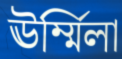
ঊর্ম্মিলা